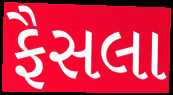
ફૈસલા